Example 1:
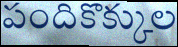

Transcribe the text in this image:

పందికొక్కుల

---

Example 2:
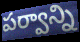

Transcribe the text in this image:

పర్వాన్ని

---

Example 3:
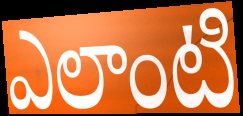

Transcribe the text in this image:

ఎలాంటి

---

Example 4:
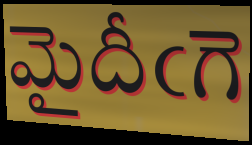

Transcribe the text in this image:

మైదీఁగె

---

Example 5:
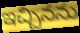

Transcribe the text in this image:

ఇచ్చినను